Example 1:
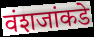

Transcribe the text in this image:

वंशजांकडे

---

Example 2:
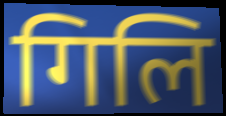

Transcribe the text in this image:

गिलि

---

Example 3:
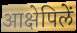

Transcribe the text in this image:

आक्षेपिलें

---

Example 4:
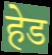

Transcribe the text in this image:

हेड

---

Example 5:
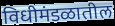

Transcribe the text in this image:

विधीमंडळातील